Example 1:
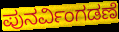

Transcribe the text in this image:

ಪುನರ್ವಿಂಗಡಣೆ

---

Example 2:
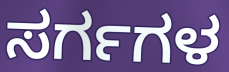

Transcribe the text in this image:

ಸರ್ಗಗಳ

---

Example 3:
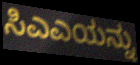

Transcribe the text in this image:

ಸಿಎಎಯನ್ನು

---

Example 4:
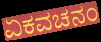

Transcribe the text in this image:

ಏಕವಚನಂ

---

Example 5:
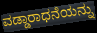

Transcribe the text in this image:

ವಡ್ಡಾರಾಧನೆಯನ್ನು